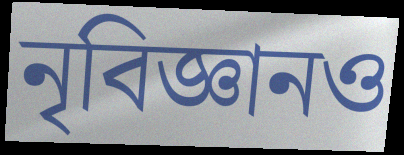
নৃবিজ্ঞানও